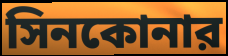
সিনকোনার